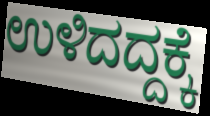
ಉಳಿದದ್ದಕ್ಕೆ